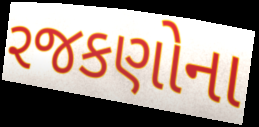
રજકણોના